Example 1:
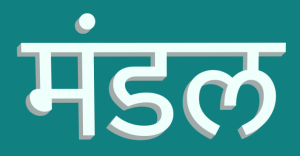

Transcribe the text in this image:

मंडल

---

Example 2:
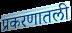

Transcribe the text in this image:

प्रकरणातली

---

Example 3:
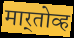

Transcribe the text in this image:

मार्तोव्ह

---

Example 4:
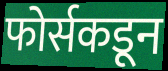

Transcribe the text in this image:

फोर्सकडून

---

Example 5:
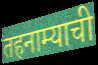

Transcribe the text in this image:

तहनाम्याची